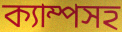
ক্যাম্পসহ